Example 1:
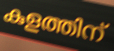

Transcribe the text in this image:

കുളത്തിന്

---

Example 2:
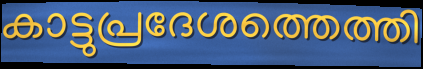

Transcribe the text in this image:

കാട്ടുപ്രദേശത്തെത്തി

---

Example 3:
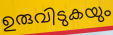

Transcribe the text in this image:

ഉരുവിടുകയും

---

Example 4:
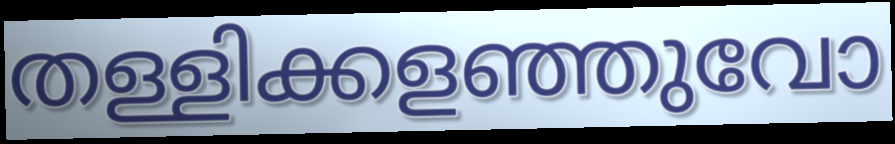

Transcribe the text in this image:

തള്ളിക്കളഞ്ഞുവോ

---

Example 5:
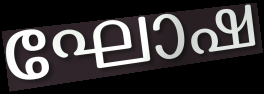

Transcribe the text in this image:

ഘോഷ